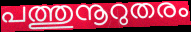
പത്തുനൂറുതരം